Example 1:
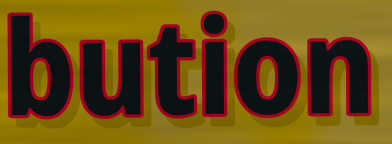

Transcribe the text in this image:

bution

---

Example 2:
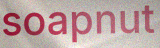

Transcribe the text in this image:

soapnut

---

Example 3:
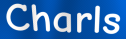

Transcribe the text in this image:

Charls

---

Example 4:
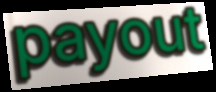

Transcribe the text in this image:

payout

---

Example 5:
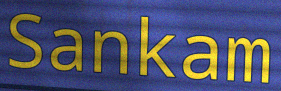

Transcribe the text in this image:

Sankam